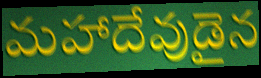
మహాదేవుడైన